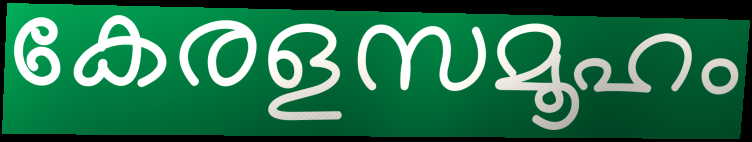
കേരളസമൂഹം